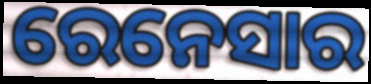
ରେନେସାର